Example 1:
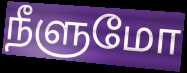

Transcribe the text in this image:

நீளுமோ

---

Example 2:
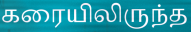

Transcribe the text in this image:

கரையிலிருந்த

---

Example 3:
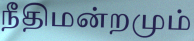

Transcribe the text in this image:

நீதிமன்றமும்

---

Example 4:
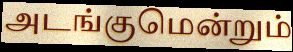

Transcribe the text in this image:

அடங்குமென்றும்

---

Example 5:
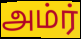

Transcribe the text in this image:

அம்ர்